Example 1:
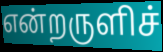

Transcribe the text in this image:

என்றருளிச்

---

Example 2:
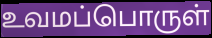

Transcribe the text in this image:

உவமப்பொருள்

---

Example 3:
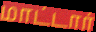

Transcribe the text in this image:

மாட்டார்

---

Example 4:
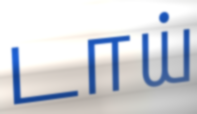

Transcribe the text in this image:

டாய்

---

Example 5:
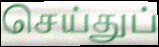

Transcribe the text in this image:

செய்துப்